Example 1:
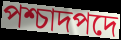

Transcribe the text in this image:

পশ্চাদপদে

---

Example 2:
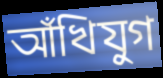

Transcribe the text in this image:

আঁখিযুগ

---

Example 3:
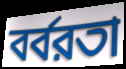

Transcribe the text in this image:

বর্বরতা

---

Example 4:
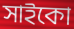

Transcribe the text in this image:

সাইকো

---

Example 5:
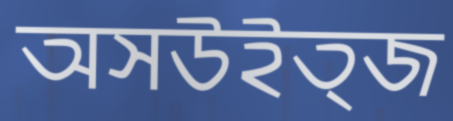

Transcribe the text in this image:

অসউইত্জ